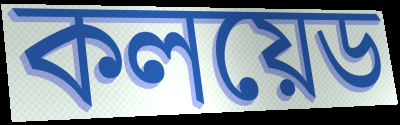
কলয়েড